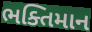
ભક્તિમાન